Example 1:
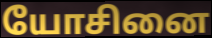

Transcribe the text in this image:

யோசினை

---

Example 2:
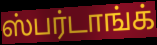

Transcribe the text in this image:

ஸ்பர்டாங்க்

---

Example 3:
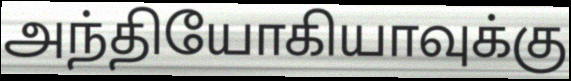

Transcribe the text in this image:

அந்தியோகியாவுக்கு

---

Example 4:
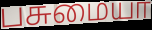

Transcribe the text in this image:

பசுமையா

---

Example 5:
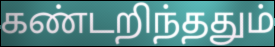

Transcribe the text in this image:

கண்டறிந்ததும்